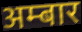
अम्बार